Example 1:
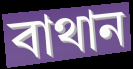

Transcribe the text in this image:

বাথান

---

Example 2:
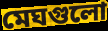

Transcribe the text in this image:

মেঘগুলো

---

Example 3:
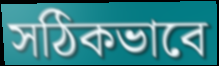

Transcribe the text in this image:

সঠিকভাবে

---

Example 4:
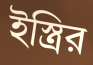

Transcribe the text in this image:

ইস্ত্রির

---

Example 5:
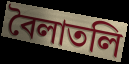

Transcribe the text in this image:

বৈলাতলি